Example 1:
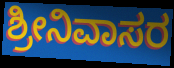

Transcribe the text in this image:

ಶ್ರೀನಿವಾಸರ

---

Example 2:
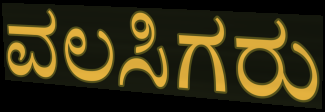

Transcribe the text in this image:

ವಲಸಿಗರು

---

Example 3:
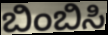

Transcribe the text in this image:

ಬಿಂಬಿಸಿ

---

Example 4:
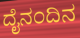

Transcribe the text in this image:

ದೈನಂದಿನ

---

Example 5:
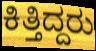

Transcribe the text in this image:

ಕಿತ್ತಿದ್ದರು